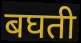
बघती